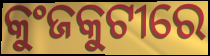
କୁଂଜକୁଟୀରେ